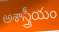
అశాస్త్రీయం